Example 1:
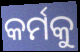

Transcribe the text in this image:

କର୍ମକୁ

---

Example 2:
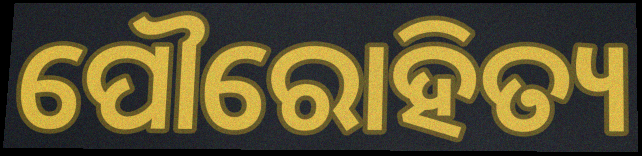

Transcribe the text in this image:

ପୌରୋହିତ୍ୟ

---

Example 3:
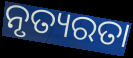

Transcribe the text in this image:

ନୃତ୍ୟରତା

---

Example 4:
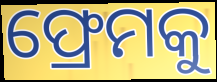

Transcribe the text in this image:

ଫ୍ରେମକୁ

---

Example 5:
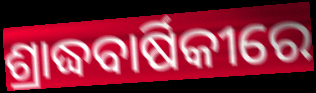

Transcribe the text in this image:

ଶ୍ରାଦ୍ଧବାର୍ଷିକୀରେ